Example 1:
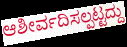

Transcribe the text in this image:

ಆಶೀರ್ವದಿಸಲ್ಪಟ್ಟದ್ದು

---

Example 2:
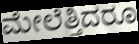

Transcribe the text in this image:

ಮೇಲೆತ್ತಿದರೂ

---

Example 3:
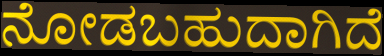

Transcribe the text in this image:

ನೋಡಬಹುದಾಗಿದೆ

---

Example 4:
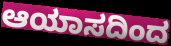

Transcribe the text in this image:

ಆಯಾಸದಿಂದ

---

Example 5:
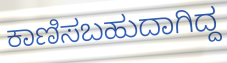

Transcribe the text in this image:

ಕಾಣಿಸಬಹುದಾಗಿದ್ದ